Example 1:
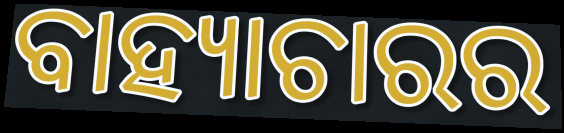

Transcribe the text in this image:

ବାହ୍ୟାଚାରର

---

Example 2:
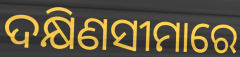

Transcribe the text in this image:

ଦକ୍ଷିଣସୀମାରେ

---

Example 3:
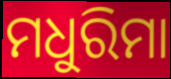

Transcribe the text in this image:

ମଧୁରିମା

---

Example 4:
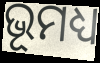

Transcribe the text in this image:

ଭୂମଧ୍ୟ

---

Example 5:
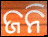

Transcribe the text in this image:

ଜନି